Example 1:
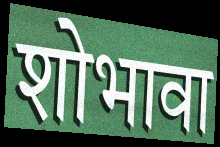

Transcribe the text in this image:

शोभावा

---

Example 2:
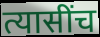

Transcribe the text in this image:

त्यासींच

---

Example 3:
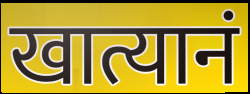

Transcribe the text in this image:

खात्यानं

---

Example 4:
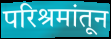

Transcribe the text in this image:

परिश्रमांतून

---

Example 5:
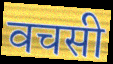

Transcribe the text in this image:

वचसी